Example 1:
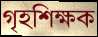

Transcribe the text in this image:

গৃহশিক্ষক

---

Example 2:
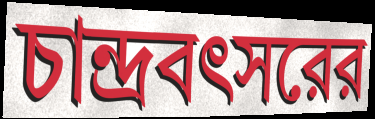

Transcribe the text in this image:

চান্দ্রবৎসরের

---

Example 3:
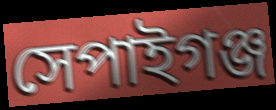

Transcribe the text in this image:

সেপাইগঞ্জ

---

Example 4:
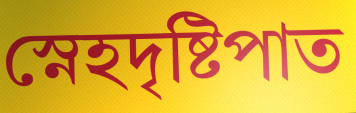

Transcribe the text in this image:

স্নেহদৃষ্টিপাত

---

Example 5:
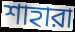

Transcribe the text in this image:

শাহারা